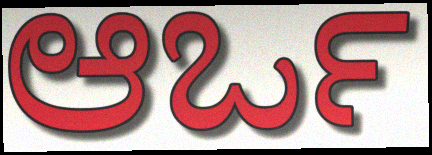
ಆರ್ಒ